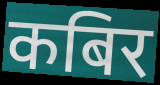
कबिर